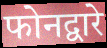
फोनद्वारे